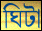
ঘিটা